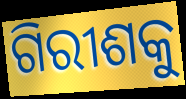
ଗିରୀଶକୁ